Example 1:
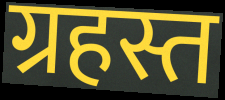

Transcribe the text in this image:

ग्रहस्त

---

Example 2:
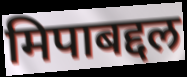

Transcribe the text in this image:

मिपाबद्दल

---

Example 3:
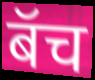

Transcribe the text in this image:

बॅच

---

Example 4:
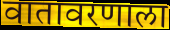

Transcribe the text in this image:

वातावरणाला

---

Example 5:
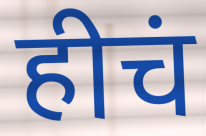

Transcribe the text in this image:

हीचं